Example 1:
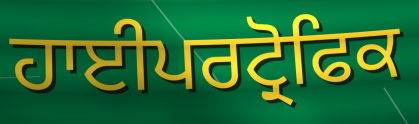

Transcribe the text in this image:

ਹਾਈਪਰਟ੍ਰੋਫਿਕ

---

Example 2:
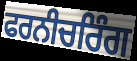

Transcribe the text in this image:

ਫਰਨੀਚਰਿੰਗ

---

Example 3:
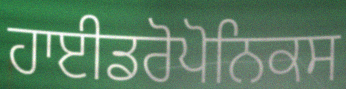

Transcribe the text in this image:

ਹਾਈਡਰੋਪੋਨਿਕਸ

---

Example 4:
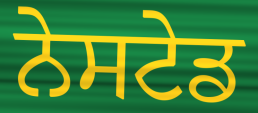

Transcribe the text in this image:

ਨੇਸਟੇਡ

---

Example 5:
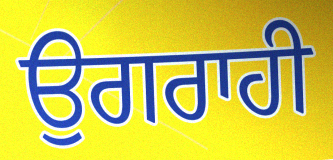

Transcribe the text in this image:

ਉਗਰਾਹੀ